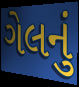
ગેલનું